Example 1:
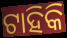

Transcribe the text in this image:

ଟାହିକି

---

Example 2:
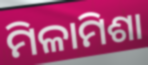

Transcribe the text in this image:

ମିଳାମିଶା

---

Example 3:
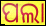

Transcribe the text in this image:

ପଲା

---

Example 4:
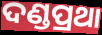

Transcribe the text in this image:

ଦଣ୍ଡପ୍ରଥା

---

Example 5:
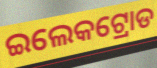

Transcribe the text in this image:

ଇଲେକଟ୍ରୋଡ